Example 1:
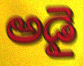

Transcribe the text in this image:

అడై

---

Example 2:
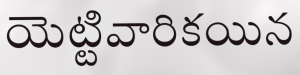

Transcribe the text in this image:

యెట్టివారికయిన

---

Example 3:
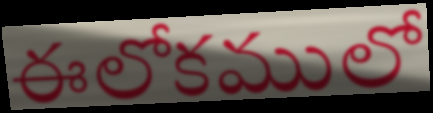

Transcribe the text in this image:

ఈలోకములో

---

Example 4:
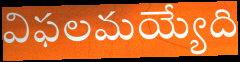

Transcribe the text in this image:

విఫలమయ్యేది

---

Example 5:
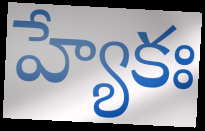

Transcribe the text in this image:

హ్యేకః